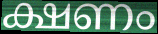
ക്ഷണം